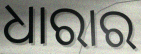
ଧାରାର